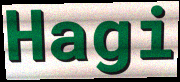
Hagi